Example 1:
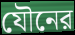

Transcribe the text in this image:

যৌনের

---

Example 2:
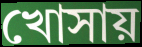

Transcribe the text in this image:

খোসায়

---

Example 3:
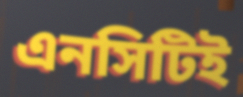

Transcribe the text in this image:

এনসিটিই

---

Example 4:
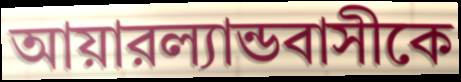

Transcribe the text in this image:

আয়ারল্যান্ডবাসীকে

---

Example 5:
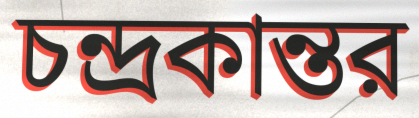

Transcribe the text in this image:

চন্দ্রকান্তর